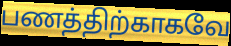
பணத்திற்காகவே